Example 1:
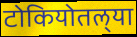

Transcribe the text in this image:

टोकियोतल्या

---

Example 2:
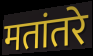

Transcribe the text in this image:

मतांतरे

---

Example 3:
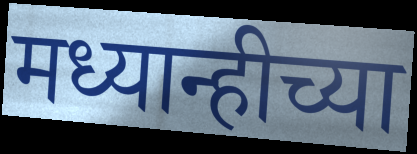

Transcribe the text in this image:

मध्यान्हीच्या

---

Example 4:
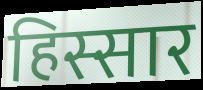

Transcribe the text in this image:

हिस्सार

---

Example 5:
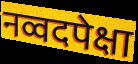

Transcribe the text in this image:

नव्वदपेक्षा